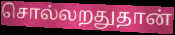
சொல்லறதுதான்